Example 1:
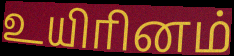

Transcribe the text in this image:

உயிரினம்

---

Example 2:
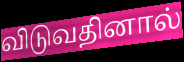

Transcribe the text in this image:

விடுவதினால்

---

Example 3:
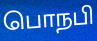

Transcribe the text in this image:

பொநபி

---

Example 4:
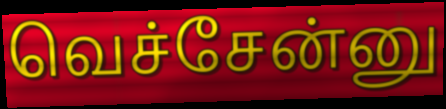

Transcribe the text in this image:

வெச்சேன்னு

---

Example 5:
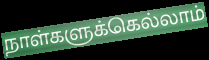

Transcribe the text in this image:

நாள்களுக்கெல்லாம்